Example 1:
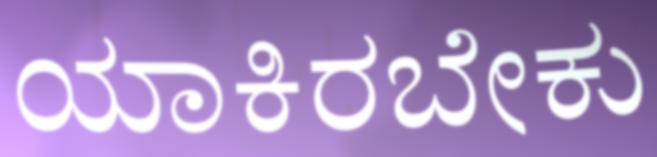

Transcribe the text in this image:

ಯಾಕಿರಬೇಕು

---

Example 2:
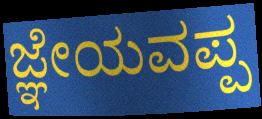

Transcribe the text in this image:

ಜ್ಞೇಯವಪ್ಪ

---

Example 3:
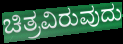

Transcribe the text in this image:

ಚಿತ್ರವಿರುವುದು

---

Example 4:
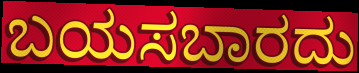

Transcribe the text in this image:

ಬಯಸಬಾರದು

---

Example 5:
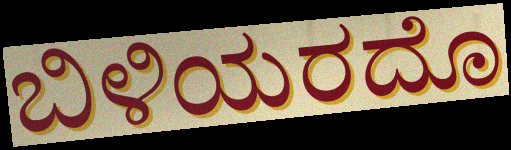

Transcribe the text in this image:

ಬಿಳಿಯರದೊ